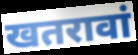
खतरावां